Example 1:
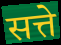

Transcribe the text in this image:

सत्ते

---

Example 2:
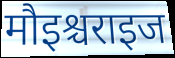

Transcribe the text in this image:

मौइश्चराइज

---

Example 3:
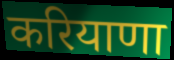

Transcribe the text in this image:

करियाणा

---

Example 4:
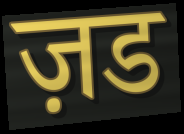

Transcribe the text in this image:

ज़ड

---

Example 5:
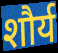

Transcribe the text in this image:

शौर्य